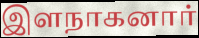
இளநாகனார்